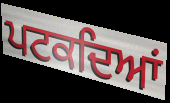
ਪਟਕਦਿਆਂ